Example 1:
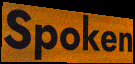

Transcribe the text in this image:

Spoken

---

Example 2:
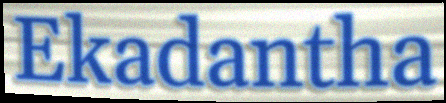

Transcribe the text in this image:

Ekadantha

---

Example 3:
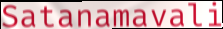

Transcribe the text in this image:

Satanamavali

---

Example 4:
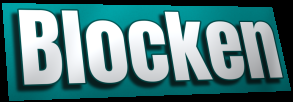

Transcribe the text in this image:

Blocken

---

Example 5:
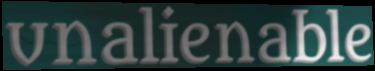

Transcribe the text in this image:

unalienable